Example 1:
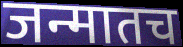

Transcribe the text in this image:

जन्मातच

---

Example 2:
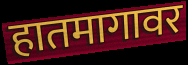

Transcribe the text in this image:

हातमागावर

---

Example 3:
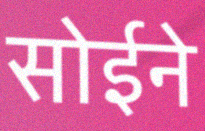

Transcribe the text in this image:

सोईने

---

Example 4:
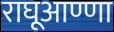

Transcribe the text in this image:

राघूआण्णा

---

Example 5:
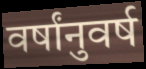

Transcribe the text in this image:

वर्षांनुवर्ष